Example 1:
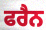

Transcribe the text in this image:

ਫਰੈਨ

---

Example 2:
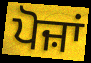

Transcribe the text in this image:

ਪੋਜ਼ਾਂ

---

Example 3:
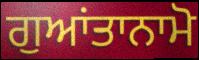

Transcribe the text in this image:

ਗੁਆਂਤਾਨਾਮੋ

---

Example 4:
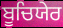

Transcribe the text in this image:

ਬੂਚਿਯੇਰ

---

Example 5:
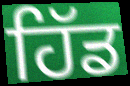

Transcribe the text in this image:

ਹਿੱਡ